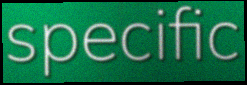
specific